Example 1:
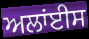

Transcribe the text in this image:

ਅਲਾਂਈਸ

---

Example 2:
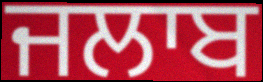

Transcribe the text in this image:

ਜਲਾਬ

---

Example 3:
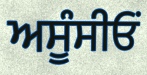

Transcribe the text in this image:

ਅਸੂੰਸੀਓਂ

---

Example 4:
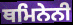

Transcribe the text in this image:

ਥਮਿਨੇਨੀ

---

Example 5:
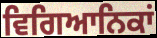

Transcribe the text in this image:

ਵਿਗਿਆਨਿਕਾਂ